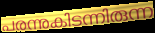
പരന്നുകിടന്നിരുന്ന